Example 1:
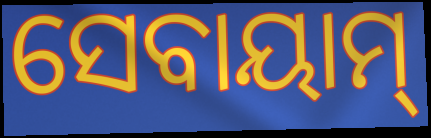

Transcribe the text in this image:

ସେବାୟାମ୍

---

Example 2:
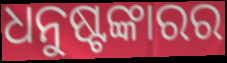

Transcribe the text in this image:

ଧନୁଷ୍ଟଙ୍କାରର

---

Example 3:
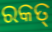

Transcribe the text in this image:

ରକତ୍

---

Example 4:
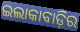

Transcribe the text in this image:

ଇଲାକାବାଡ଼ିର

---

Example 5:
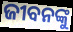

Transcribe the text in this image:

ଜୀବନଙ୍କୁ